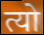
त्यो